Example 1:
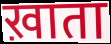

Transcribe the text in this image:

ख़ाता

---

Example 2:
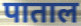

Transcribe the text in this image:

पाताल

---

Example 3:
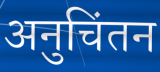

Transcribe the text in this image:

अनुचिंतन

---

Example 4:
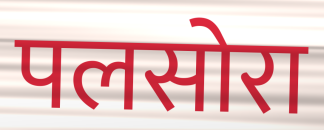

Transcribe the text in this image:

पलसोरा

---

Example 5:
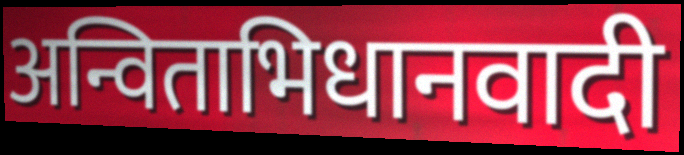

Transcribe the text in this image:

अन्विताभिधानवादी